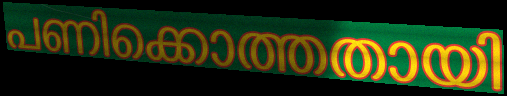
പണിക്കൊത്തതായി